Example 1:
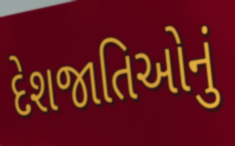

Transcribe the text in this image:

દેશજાતિઓનું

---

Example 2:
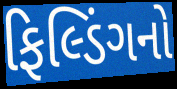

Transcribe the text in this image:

ફિલ્ડિંગનો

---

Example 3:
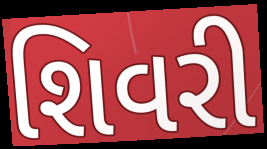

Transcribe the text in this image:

શિવરી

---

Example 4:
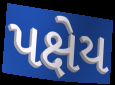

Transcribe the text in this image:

પક્ષેય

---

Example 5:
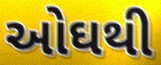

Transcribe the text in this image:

ઓઘથી